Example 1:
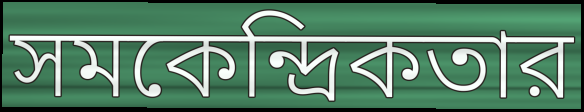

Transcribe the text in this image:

সমকেন্দ্রিকতার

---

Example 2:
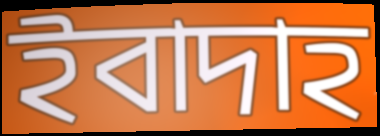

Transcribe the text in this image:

ইবাদাহ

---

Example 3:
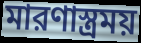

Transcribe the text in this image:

মারণাস্ত্রময়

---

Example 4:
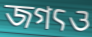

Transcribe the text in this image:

জগৎও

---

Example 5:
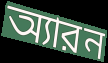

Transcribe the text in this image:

অ্যারন